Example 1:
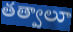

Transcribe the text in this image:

తత్వాలూ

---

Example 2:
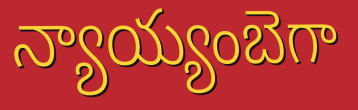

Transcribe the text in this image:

న్యాయ్యంబెగా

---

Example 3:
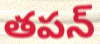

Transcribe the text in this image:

తపన్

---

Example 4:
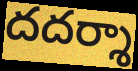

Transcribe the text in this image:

దదర్శా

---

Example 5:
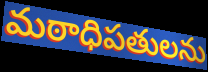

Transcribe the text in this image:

మఠాధిపతులను